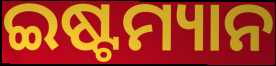
ଇଷ୍ଟମ୍ୟାନ